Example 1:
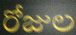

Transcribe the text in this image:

రోజుల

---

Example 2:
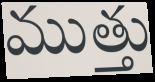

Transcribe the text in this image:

ముత్తు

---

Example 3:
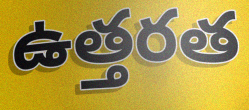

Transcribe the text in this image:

ఉత్తరత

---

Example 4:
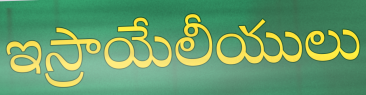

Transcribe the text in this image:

ఇస్రాయేలీయులు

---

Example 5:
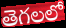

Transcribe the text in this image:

తెగలలో